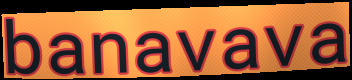
banavava